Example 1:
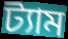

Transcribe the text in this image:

ট্যাম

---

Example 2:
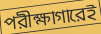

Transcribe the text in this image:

পরীক্ষাগারেই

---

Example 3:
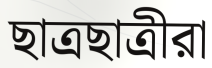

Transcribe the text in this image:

ছাত্রছাত্রীরা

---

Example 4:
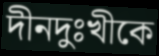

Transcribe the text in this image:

দীনদুঃখীকে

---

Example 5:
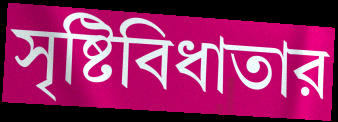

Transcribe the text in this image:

সৃষ্টিবিধাতার